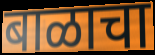
बाळाचा